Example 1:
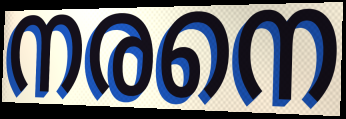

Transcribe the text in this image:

നരനെ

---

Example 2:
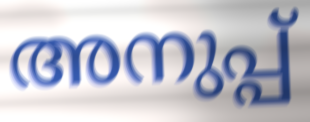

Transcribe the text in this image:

അനുപ്പ്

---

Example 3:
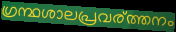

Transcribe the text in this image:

ഗ്രന്ഥശാലപ്രവര്ത്തനം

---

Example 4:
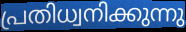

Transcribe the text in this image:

പ്രതിധ്വനിക്കുന്നു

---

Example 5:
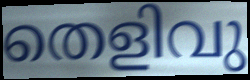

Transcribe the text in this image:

തെളിവു